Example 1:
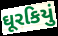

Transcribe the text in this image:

ઘૂરકિયું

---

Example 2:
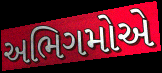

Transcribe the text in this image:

અભિગમોએ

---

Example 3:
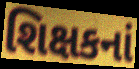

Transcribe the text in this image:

શિક્ષકનાં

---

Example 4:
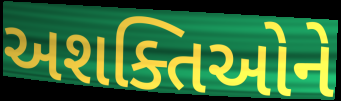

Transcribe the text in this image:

અશક્તિઓને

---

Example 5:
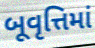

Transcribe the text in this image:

બૂવૃત્તિમાં